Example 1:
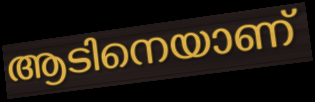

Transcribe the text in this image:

ആടിനെയാണ്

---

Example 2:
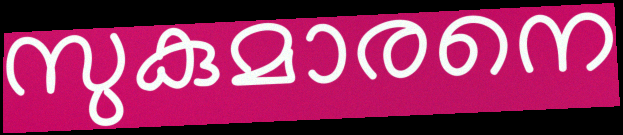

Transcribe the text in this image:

സുകുമാരനെ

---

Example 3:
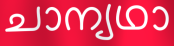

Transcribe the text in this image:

ചാന്യഥാ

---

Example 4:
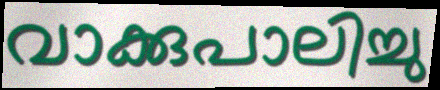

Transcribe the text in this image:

വാക്കുപാലിച്ചു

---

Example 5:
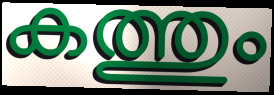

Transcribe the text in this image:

കത്തും